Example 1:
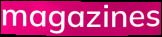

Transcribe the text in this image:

magazines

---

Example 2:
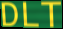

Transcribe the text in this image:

DLT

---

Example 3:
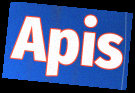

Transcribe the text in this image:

Apis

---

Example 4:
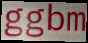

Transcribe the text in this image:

ggbm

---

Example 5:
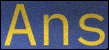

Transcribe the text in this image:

Ans